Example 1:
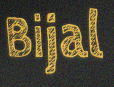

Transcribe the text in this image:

Bijal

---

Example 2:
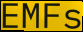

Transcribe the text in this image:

EMFs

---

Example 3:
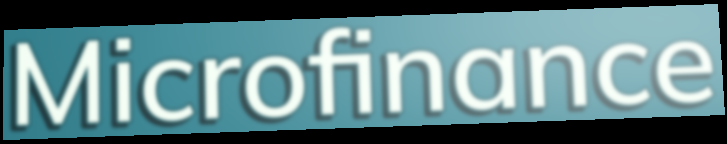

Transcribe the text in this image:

Microfinance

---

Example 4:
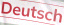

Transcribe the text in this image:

Deutsch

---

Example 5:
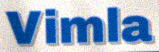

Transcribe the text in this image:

Vimla